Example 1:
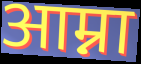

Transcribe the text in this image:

आम्ना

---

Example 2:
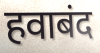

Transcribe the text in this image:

हवाबंद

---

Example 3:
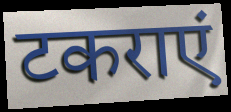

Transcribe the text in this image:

टकराएं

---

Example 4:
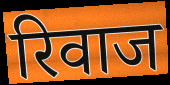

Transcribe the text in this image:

रिवाज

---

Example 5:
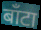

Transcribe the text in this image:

बाँटा